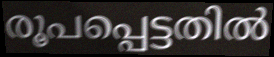
രൂപപ്പെട്ടതിൽ